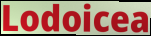
Lodoicea